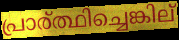
പ്രാര്ത്ഥിച്ചെങ്കില്